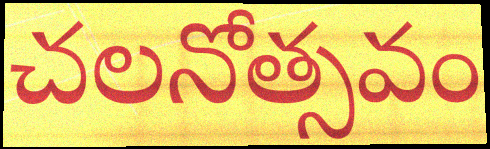
చలనోత్సవం